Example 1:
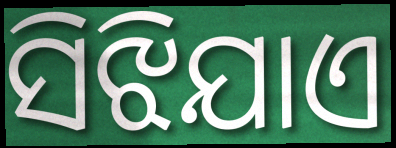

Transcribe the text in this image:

ସିଝିଯାଏ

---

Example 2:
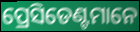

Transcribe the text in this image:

ପ୍ରେସିଡେଣ୍ଟମାନେ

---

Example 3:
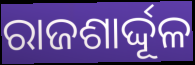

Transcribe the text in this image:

ରାଜଶାର୍ଦ୍ଦୂଳ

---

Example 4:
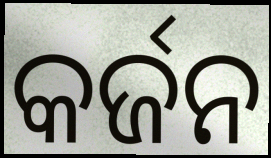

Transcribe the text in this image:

କର୍ଜନ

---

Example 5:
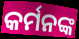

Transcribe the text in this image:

କର୍ମନଙ୍କ